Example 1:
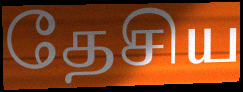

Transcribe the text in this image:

தேசிய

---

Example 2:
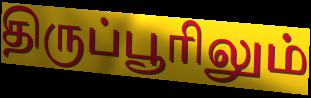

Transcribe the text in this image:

திருப்பூரிலும்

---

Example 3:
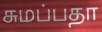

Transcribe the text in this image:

சுமப்பதா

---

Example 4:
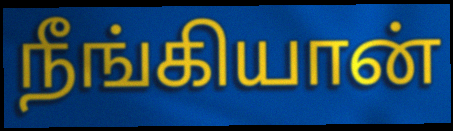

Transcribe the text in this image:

நீங்கியான்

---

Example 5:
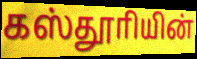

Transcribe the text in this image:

கஸ்தூரியின்